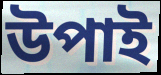
উপাই